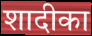
शादीका